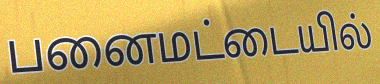
பனைமட்டையில்